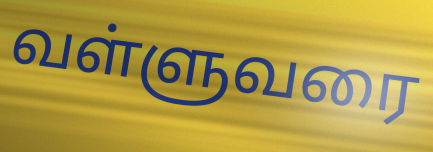
வள்ளுவரை